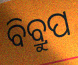
ବିବ୍ରୁପ